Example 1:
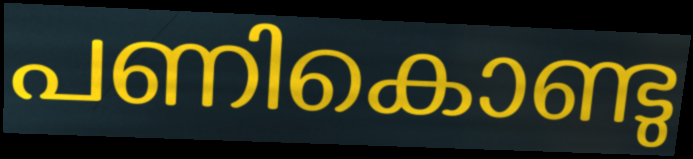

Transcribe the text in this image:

പണികൊണ്ടു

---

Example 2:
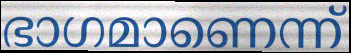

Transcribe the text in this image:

ഭാഗമാണെന്ന്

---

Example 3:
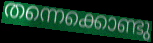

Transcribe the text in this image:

തന്നെക്കൊണ്ടു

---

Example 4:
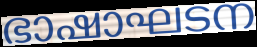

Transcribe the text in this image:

ഭാഷാഘടന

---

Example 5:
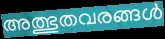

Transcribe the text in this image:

അത്ഭുതവരങ്ങൾ